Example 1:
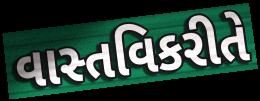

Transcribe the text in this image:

વાસ્તવિકરીતે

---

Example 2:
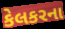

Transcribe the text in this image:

કેલકરના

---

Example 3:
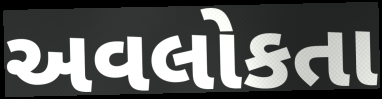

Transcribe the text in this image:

અવલોકતા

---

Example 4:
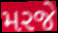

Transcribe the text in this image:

મરજે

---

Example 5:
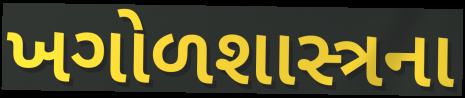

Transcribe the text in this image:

ખગોળશાસ્ત્રના